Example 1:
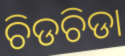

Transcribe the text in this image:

ଚିଡଚିଡା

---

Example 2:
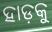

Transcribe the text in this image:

ହାଡ଼କୁ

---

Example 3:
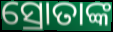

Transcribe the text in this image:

ସ୍ରୋତାଙ୍କ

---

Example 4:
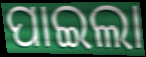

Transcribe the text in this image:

ପାଇଲା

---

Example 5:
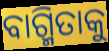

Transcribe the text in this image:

ବାଗ୍ମିତାକୁ